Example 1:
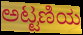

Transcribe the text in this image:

ಅಟ್ಟಣಿಯ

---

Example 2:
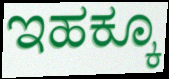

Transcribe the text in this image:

ಇಹಕ್ಕೂ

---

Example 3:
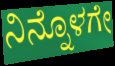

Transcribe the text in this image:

ನಿನ್ನೊಳಗೇ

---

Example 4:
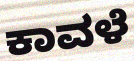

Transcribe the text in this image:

ಕಾವಳೆ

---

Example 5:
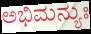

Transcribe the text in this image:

ಅಭಿಮನ್ಯುಃ